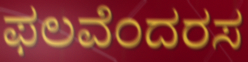
ಫಲವೆಂದರಸ